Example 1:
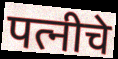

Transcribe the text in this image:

पत्‍नीचे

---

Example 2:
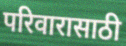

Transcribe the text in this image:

परिवारासाठी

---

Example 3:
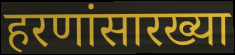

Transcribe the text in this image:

हरणांसारख्या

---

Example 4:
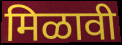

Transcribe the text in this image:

मिळावी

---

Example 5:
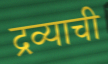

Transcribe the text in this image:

द्रव्याची